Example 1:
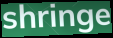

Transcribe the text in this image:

shringe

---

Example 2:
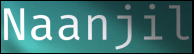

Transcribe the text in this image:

Naanjil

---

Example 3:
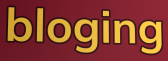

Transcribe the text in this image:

bloging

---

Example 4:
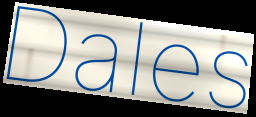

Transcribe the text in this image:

Dales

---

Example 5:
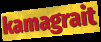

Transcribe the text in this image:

kamagrait